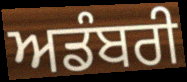
ਅਡੰਬਰੀ